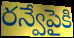
రన్వేపైకి